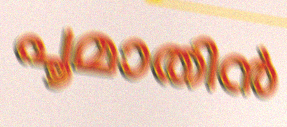
പൂമാതിൻ